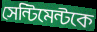
সেন্টিমেন্টকে